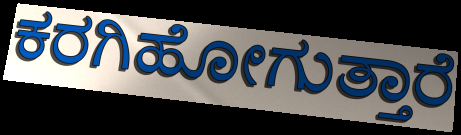
ಕರಗಿಹೋಗುತ್ತಾರೆ